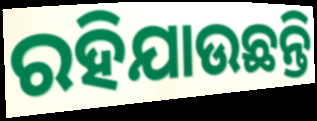
ରହିଯାଉଛନ୍ତି